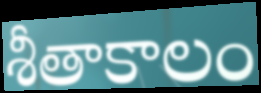
శీతాకాలం